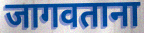
जागवताना